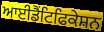
ਆਈਡੈਂਟਿਫਿਕੇਸ਼ਨ